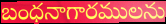
బంధనాగారములను